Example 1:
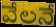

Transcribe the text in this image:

వేలనే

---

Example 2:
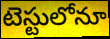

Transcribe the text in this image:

టెస్టులోనూ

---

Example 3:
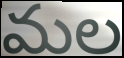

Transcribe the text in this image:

మల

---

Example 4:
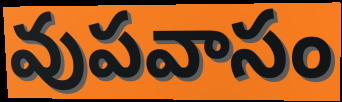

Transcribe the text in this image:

వుపవాసం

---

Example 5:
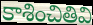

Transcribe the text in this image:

కాశించితివి